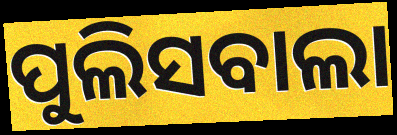
ପୁଲିସବାଲା